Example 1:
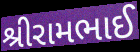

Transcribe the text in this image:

શ્રીરામભાઈ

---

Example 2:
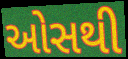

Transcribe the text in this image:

ઓસથી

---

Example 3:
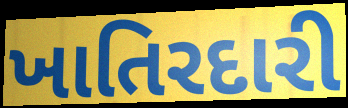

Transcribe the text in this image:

ખાતિરદારી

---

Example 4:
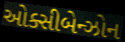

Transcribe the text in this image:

ઓક્સીબેન્ઝોન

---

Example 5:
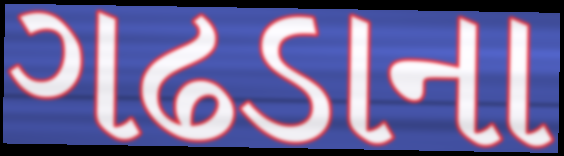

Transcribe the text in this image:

ગઢડાના